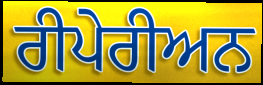
ਰੀਪੇਰੀਅਨ